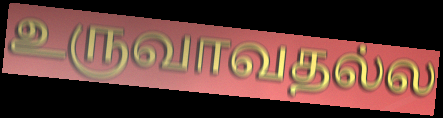
உருவாவதல்ல